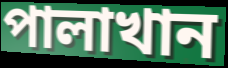
পালাখান